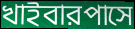
খাইবারপাসে